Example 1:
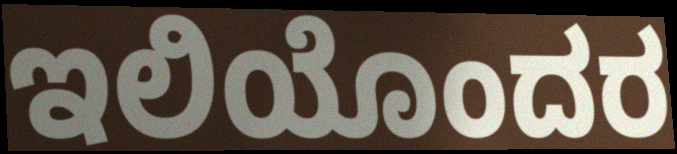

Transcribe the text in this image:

ಇಲಿಯೊಂದರ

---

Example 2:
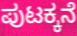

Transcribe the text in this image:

ಪುಟಕ್ಕನೆ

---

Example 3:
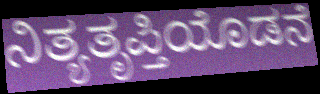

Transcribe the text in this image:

ನಿತ್ಯತೃಪ್ತಿಯೊಡನೆ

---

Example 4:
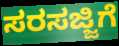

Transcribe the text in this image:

ಸರಸಜ್ಜಿಗೆ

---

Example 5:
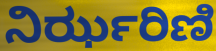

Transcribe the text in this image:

ನಿರ್ಝರಿಣಿ